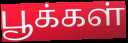
பூக்கள்